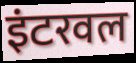
इंटरवल